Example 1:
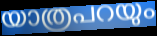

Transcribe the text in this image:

യാത്രപറയും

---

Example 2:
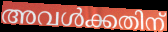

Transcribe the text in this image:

അവൾക്കതിന്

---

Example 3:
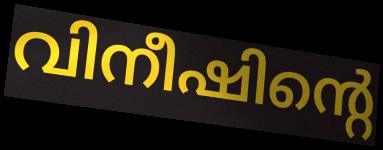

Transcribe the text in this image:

വിനീഷിന്റെ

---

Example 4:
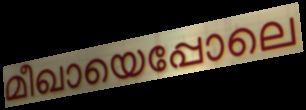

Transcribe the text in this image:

മീഖായെപ്പോലെ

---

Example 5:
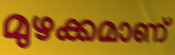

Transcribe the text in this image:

മുഴക്കമാണ്